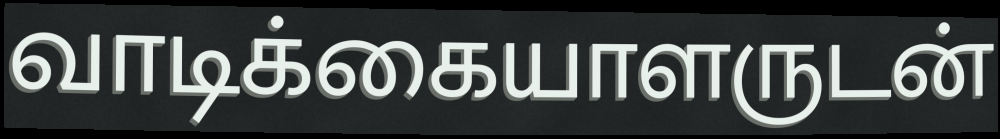
வாடிக்கையாளருடன்